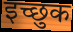
इच्छुक